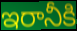
ఇరానీకి